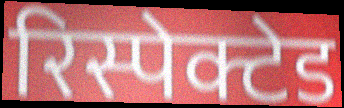
रिस्पेक्टेड